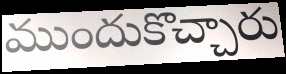
ముందుకొచ్చారు